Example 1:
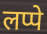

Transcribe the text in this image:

लप्पे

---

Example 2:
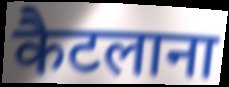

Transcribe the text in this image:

कैटलाना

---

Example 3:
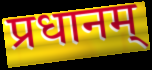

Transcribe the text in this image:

प्रधानम्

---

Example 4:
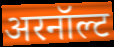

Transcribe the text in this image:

अरनॉल्ट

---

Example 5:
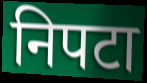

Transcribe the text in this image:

निपटा